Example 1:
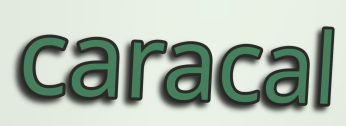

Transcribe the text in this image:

caracal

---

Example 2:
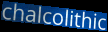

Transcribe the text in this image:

chalcolithic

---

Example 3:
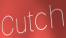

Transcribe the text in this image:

Cutch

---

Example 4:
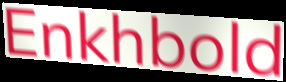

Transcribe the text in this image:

Enkhbold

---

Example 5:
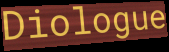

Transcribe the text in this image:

Diologue